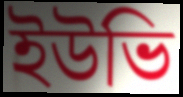
ইউভি